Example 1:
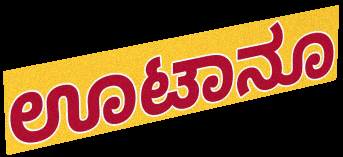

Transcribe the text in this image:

ಊಟಾನೂ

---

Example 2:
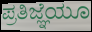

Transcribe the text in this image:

ಪ್ರತಿಜ್ಞೆಯೂ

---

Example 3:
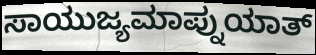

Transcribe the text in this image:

ಸಾಯುಜ್ಯಮಾಪ್ನುಯಾತ್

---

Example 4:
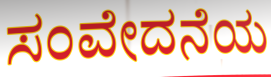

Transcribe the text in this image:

ಸಂವೇದನೆಯ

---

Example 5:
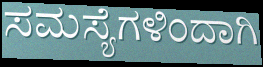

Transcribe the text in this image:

ಸಮಸ್ಯೆಗಳಿಂದಾಗಿ